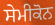
ਸੇਮੀਕੋਨ